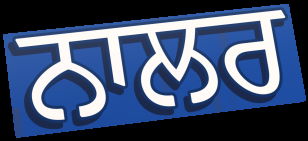
ਨਾਲਰ